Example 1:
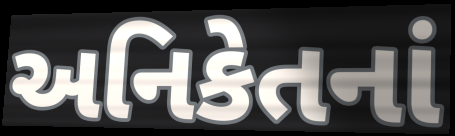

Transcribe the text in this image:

અનિકેતનાં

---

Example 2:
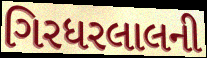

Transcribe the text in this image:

ગિરધરલાલની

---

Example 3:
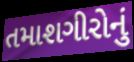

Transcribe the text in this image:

તમાશગીરોનું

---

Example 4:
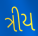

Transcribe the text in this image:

ત્રીય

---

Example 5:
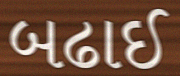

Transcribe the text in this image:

બઢાઈ